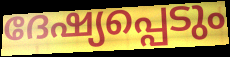
ദേഷ്യപ്പെടും